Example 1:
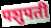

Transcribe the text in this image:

पशुपती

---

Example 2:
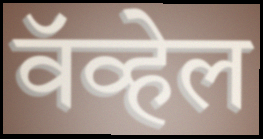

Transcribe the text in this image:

वॅव्हेल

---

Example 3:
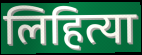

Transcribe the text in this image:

लिहित्या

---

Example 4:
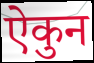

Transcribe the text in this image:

ऐकुन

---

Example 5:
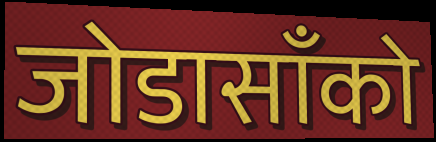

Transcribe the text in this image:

जोडासाँको